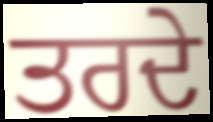
ਤਰਦੇ